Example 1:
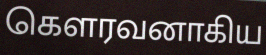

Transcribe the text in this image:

கௌரவனாகிய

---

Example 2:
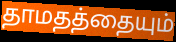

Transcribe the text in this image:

தாமதத்தையும்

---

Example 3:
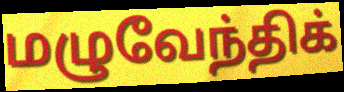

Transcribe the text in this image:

மழுவேந்திக்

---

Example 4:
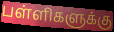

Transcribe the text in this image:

பள்ளிகளுக்கு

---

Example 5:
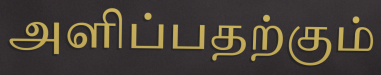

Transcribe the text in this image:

அளிப்பதற்கும்